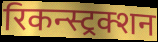
रिकन्स्ट्रक्शन